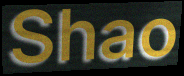
Shao